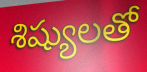
శిష్యులతో